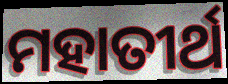
ମହାତୀର୍ଥ